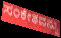
ಸಂಕೇತವನ್ನು